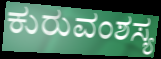
ಕುರುವಂಶಸ್ಯ